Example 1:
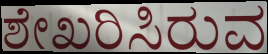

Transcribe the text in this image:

ಶೇಖರಿಸಿರುವ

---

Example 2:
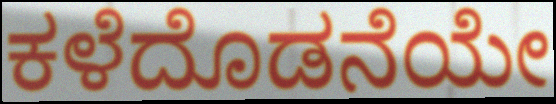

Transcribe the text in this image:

ಕಳೆದೊಡನೆಯೇ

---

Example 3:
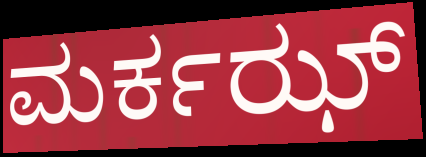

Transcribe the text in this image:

ಮರ್ಕಝ್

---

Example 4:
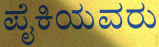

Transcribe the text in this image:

ಪೈಕಿಯವರು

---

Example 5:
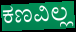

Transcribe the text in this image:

ಕಣವಿಲ್ಲ